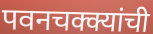
पवनचक्क्यांची